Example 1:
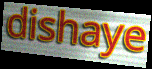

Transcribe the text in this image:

dishaye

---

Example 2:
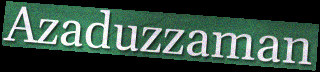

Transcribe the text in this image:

Azaduzzaman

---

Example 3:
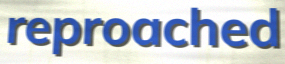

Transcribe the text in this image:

reproached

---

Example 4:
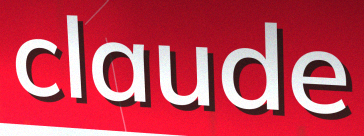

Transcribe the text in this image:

claude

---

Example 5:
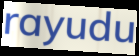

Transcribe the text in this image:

rayudu